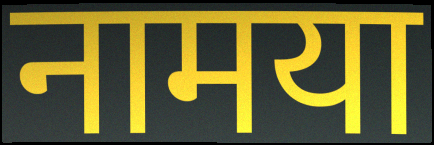
नामया